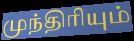
முந்திரியும்